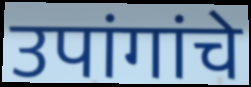
उपांगांचे